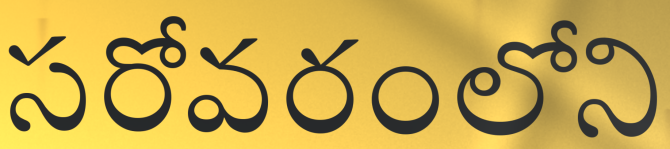
సరోవరంలోని